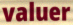
valuer